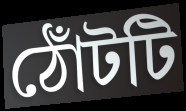
ঠোঁটটি